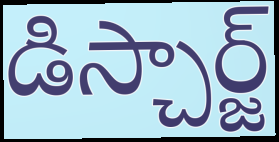
డిస్చార్జ్